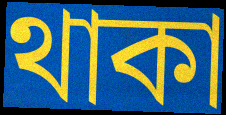
থাকা